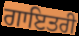
ਗਾਇਤਰੀ